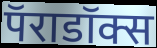
पॅराडॉक्स